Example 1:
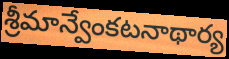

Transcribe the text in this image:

శ్రీమాన్వేంకటనాథార్య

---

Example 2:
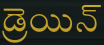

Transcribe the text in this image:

డ్రెయిన్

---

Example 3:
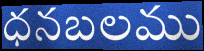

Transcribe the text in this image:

ధనబలము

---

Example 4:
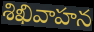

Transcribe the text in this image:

శిఖివాహన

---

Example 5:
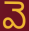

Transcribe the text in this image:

వె